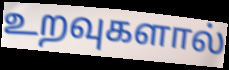
உறவுகளால்